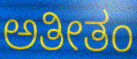
ಅತೀತಂ